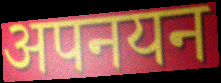
अपनयन